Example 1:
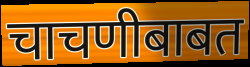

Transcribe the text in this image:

चाचणीबाबत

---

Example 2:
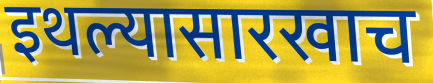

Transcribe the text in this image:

इथल्यासारखाच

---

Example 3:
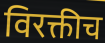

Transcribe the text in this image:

विरक्तीच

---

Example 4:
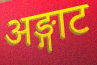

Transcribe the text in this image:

अङ्गाट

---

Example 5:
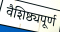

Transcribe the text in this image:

वैशिष्ठ्यपूर्ण